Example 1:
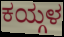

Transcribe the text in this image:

ಕಯ್ಗಳ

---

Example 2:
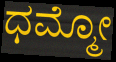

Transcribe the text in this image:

ಧಮ್ಮೋ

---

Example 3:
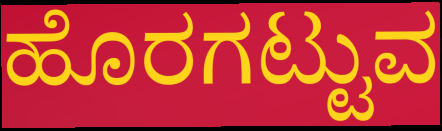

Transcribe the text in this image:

ಹೊರಗಟ್ಟುವ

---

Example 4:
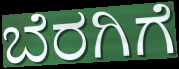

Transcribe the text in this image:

ಬೆರಗಿಗೆ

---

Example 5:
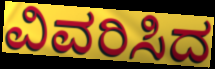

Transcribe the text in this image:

ವಿವರಿಸಿದ